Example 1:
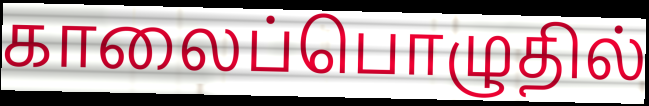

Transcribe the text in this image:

காலைப்பொழுதில்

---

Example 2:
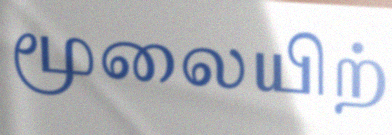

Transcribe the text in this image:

மூலையிற்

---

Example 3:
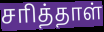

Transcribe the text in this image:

சரித்தாள்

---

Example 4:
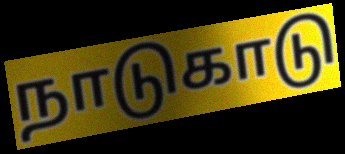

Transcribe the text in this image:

நாடுகாடு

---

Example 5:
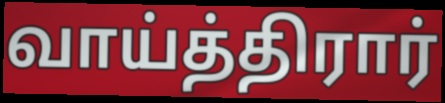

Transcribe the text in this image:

வாய்த்திரார்